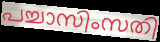
പച്ചാസിംസതി